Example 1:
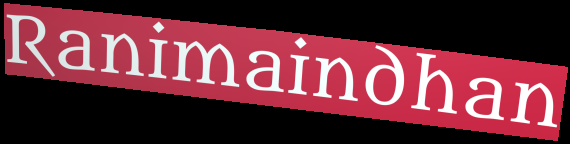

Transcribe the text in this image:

Ranimaindhan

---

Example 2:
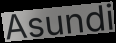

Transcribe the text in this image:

Asundi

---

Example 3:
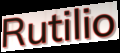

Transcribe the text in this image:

Rutilio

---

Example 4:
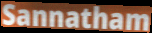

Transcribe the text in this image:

Sannatham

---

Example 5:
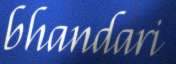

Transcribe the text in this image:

bhandari